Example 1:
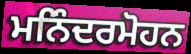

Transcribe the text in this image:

ਮਨਿੰਦਰਮੋਹਨ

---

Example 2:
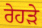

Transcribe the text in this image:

ਰੇਹੜੇ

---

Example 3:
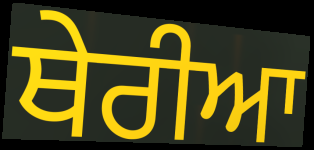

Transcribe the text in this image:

ਥੇਰੀਆ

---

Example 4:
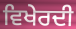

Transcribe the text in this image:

ਵਿਖੇਰਦੀ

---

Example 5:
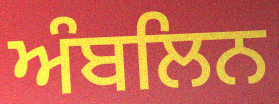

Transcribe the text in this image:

ਅੰਬਲਿਨ